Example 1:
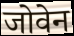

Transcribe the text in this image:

जोवेन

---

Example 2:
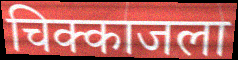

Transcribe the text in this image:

चिक्काजला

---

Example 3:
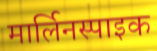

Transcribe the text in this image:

मार्लिनस्पाइक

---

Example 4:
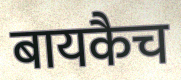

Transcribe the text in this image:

बायकैच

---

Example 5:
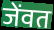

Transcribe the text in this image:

जेंवत